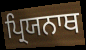
ਪ੍ਰਿਯਨਾਥ